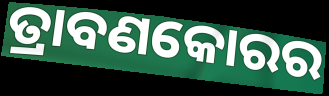
ତ୍ରାବଣକୋରର